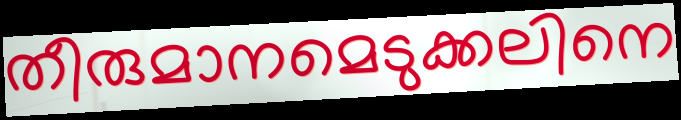
തീരുമാനമെടുക്കലിനെ